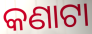
କଣାଟା